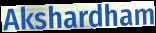
Akshardham